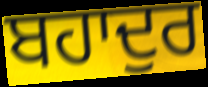
ਬਹਾਦੁਰ